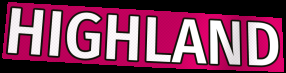
HIGHLAND